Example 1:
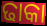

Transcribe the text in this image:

ଢାକା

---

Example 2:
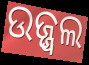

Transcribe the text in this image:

ଉଜ୍ଜ୍ୱଲ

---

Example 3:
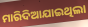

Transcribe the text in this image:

ମାରିଦିଆଯାଇଥିଲା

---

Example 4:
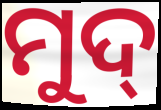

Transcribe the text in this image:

ମୁଦ୍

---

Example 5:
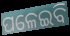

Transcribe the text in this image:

ପଳେଇବି